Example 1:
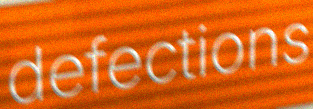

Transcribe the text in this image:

defections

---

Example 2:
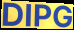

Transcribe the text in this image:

DIPG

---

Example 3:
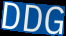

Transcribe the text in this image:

DDG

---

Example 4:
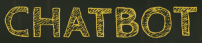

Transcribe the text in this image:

CHATBOT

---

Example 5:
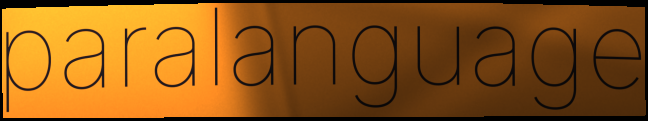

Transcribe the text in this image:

paralanguage